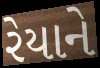
રેયાને